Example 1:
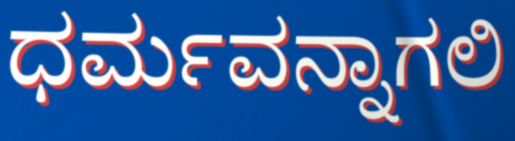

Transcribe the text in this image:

ಧರ್ಮವನ್ನಾಗಲಿ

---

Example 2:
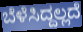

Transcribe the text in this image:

ಬೆಳೆಸಿದ್ದಲ್ಲದೆ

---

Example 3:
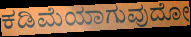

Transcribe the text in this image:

ಕಡಿಮೆಯಾಗುವುದೋ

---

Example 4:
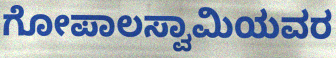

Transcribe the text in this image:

ಗೋಪಾಲಸ್ವಾಮಿಯವರ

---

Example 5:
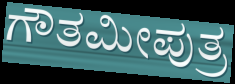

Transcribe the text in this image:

ಗೌತಮೀಪುತ್ರ